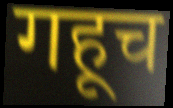
गहूच